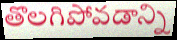
తొలగిపోవడాన్ని